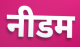
नीडम